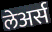
लेअर्स